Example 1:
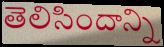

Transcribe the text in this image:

తెలిసిందాన్ని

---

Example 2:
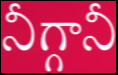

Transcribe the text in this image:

నీగ్గానీ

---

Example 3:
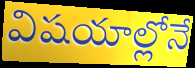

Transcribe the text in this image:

విషయాల్లోనే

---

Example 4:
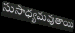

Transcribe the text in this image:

సుసాధ్యమవుతాయి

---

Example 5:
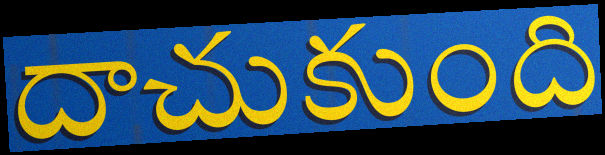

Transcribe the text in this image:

దాచుకుంది